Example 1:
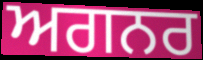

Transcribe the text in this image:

ਅਗਨਰ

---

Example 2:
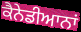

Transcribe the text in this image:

ਕੈਨੇਡੀਆਨਾਂ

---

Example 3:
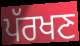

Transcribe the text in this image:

ਪੱਰਖਣ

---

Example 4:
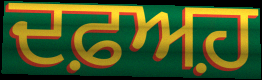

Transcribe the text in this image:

ਦਫ਼ਅ਼ਹ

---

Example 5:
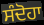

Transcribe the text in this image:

ਸੰਦੋਹਾ